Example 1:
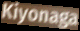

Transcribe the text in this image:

Kiyonaga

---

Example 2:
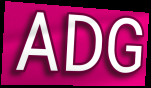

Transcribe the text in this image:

ADG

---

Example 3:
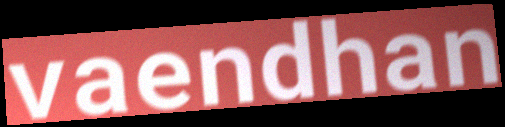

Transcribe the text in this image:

vaendhan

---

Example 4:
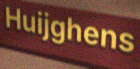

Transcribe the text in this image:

Huijghens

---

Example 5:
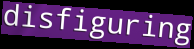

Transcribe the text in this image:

disfiguring